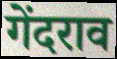
गेंदराव